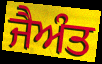
ਜੈਅੰਤ